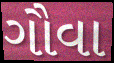
ગૌવા